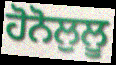
ਹੋਨੋਲੁਲੂ